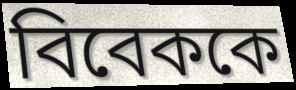
বিবেককে